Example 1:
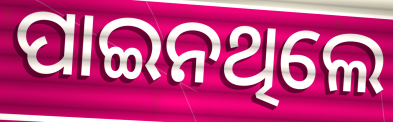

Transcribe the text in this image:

ପାଇନଥିଲେ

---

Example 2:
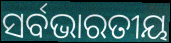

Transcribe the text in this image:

ସର୍ବଭାରତୀୟ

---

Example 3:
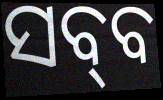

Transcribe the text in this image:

ସବ୍‌ବ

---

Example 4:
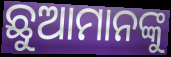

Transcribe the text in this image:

ଛୁଆମାନଙ୍କୁ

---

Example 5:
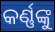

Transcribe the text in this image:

କର୍ଣ୍ଣଙ୍କୁ